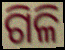
ଗିଳି